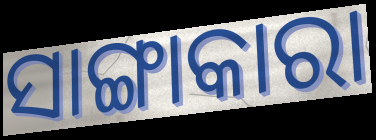
ସାଙ୍ଗାକାରା